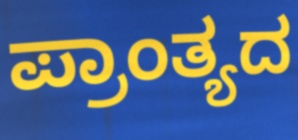
ಪ್ರಾಂತ್ಯದ